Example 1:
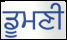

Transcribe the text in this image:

ਡੂਮਣੀ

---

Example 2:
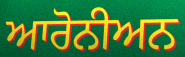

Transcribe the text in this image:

ਆਰੋਨੀਅਨ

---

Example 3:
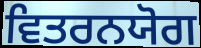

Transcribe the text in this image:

ਵਿਤਰਨਯੋਗ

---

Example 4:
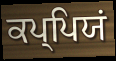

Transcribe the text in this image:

ਕਪ੍ਪਿਯਂ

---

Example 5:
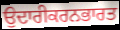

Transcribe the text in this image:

ਉਦਾਰੀਕਰਨਭਾਰਤ